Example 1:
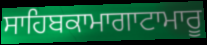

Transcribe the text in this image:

ਸਾਹਿਬਕਾਮਾਗਾਟਾਮਾਰੂ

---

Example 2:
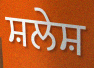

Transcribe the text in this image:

ਸ਼ਲੇਸ਼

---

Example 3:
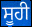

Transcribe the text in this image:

ਸੂਹੀ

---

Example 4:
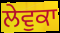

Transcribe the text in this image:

ਲੇਵੁਕਾ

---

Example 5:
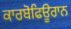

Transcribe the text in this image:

ਕਾਰਬੋਫਿਊਰਾਨ